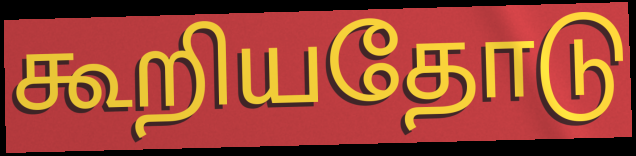
கூறியதோடு